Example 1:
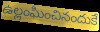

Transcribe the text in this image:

ఉల్లంఘించినందుకే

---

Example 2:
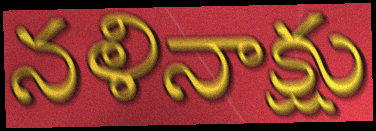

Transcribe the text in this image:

నళినాక్షు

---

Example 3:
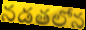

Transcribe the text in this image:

నడతలోన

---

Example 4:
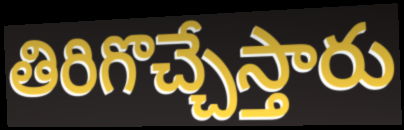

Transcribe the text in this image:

తిరిగొచ్చేస్తారు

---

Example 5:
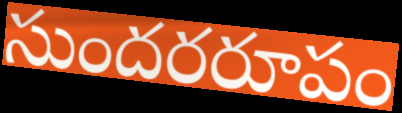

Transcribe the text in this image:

సుందరరూపం